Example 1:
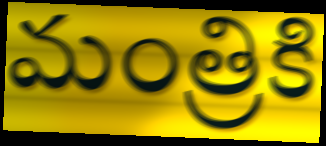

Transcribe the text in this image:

మంత్రికి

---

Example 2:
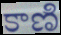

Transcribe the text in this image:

కాణి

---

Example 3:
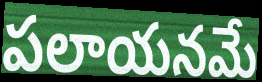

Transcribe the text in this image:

పలాయనమే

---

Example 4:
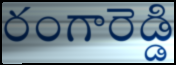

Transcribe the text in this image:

రంగారెడ్డి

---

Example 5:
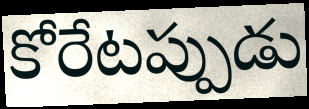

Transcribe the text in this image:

కోరేటప్పుడు